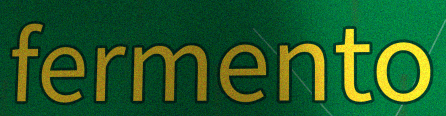
fermento